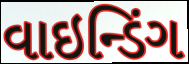
વાઇન્ડિંગ